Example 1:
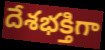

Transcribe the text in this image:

దేశభక్తిగా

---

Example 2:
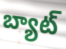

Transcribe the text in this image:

బ్యాట్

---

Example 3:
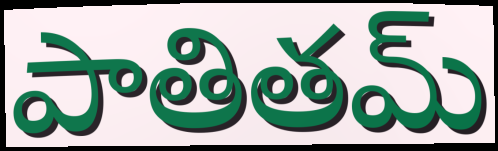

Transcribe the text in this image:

పాతితమ్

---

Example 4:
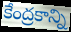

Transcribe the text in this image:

కేంద్రకాన్ని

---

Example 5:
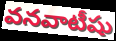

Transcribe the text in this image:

వనవాటీషు